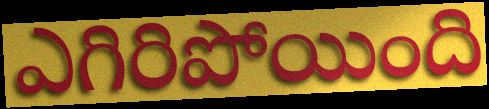
ఎగిరిపోయింది